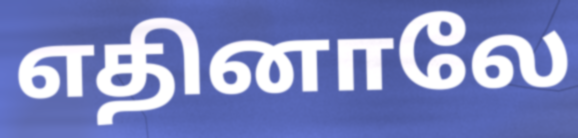
எதினாலே